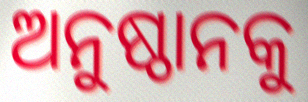
ଅନୁଷ୍ଠାନକୁ